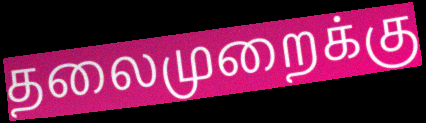
தலைமுறைக்கு